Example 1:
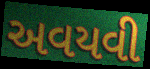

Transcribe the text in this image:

અવયવી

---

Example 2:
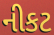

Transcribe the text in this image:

નીકટ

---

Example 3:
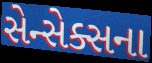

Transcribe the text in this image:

સેન્સેક્સના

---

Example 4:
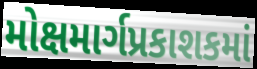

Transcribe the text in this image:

મોક્ષમાર્ગપ્રકાશકમાં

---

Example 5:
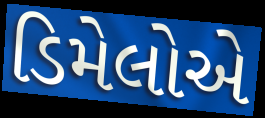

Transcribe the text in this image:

ડિમેલોએ